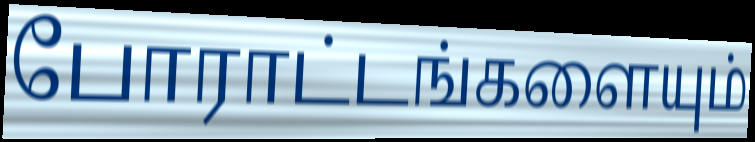
போராட்டங்களையும்